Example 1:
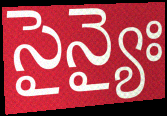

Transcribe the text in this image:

సైన్యైః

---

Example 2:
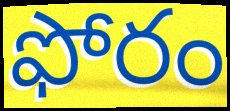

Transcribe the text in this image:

ఫోరం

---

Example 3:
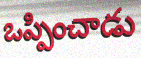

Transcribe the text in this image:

ఒప్పించాడు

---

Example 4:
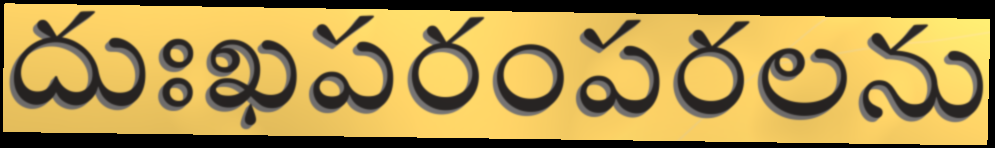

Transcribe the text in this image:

దుఃఖపరంపరలను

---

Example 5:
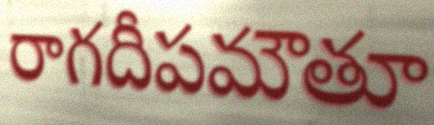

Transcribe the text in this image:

రాగదీపమౌతూ